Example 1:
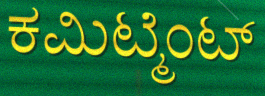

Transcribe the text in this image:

ಕಮಿಟ್ಮೆಂಟ್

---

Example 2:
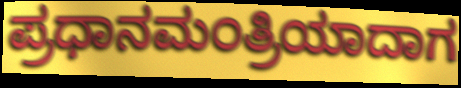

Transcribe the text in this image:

ಪ್ರಧಾನಮಂತ್ರಿಯಾದಾಗ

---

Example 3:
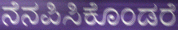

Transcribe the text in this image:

ನೆನಪಿಸಿಕೊಂಡರೆ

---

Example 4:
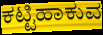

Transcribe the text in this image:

ಕಟ್ಟಿಹಾಕುವ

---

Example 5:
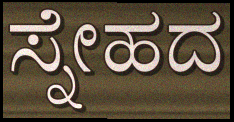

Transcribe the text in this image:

ಸ್ನೇಹದ